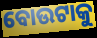
ବୋଉଟାକୁ